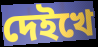
দেইখে